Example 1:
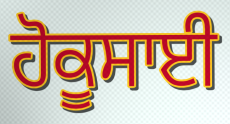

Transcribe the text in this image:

ਹੋਕੂਸਾਈ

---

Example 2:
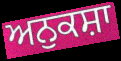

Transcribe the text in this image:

ਅਨੁਕਸ਼ਾ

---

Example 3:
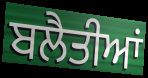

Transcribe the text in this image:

ਬਲੈਤੀਆਂ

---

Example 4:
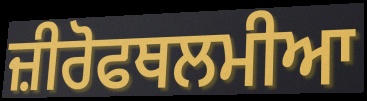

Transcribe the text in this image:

ਜ਼ੀਰੋਫਥਲਮੀਆ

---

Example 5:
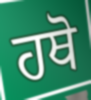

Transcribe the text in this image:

ਹਥੋ